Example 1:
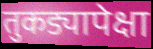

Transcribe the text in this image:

तुकड्यापेक्षा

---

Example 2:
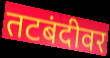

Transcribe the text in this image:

तटबंदीवर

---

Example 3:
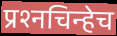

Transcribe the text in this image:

प्रश्नचिन्हेच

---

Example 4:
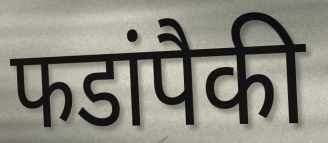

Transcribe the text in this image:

फडांपैकी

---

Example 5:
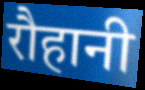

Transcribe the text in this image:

रौहानी